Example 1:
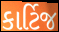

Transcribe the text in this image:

કાર્ટિજ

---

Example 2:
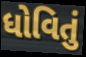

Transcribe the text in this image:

ધોવિતું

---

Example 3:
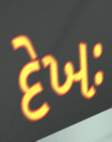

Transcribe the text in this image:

દેખઃ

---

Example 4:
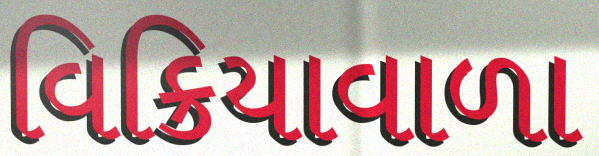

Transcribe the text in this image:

વિક્રિયાવાળા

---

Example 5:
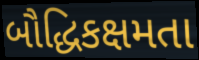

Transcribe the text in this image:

બૌદ્ધિકક્ષમતા